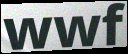
wwf